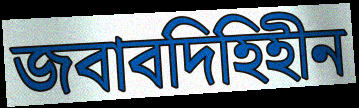
জবাবদিহিহীন